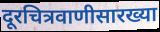
दूरचित्रवाणीसारख्या